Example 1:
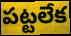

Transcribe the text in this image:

పట్టలేక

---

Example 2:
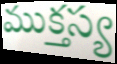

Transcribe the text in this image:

ముక్తస్య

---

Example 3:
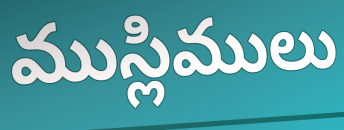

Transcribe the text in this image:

ముస్లిములు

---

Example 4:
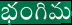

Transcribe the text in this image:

భంగిమ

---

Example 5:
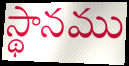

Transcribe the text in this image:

స్థానము